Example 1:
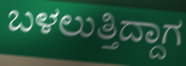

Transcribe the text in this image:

ಬಳಲುತ್ತಿದ್ದಾಗ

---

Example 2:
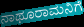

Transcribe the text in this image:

ನಾಥೂರಾಮನಿಗೆ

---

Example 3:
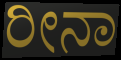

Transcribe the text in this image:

ರೀನಾ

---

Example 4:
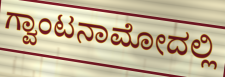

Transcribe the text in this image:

ಗ್ವಾಂಟನಾಮೋದಲ್ಲಿ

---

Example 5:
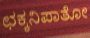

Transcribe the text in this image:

ಛಕ್ಕನಿಪಾತೋ